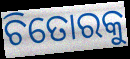
ଚିତୋରକୁ